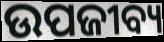
ଉପଜୀବ୍ୟ